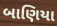
બાણિયા